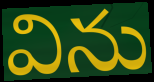
విను